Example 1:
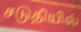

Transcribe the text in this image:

சடுதியில்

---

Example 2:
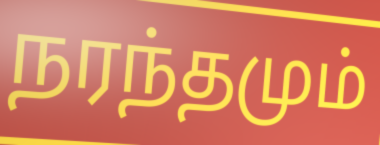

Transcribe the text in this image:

நரந்தமும்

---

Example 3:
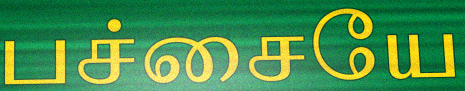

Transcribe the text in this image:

பச்சையே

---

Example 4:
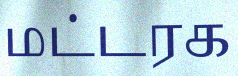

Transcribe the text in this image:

மட்டரக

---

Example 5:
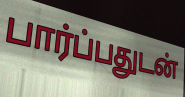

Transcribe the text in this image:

பார்ப்பதுடன்